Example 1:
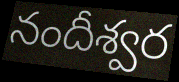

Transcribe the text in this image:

నందీశ్వర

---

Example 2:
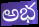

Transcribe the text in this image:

అభ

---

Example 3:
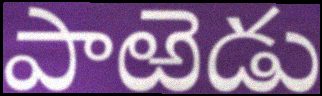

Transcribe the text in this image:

పాఱెడు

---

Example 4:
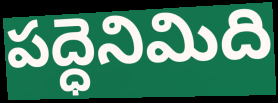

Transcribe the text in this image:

పద్ధెనిమిది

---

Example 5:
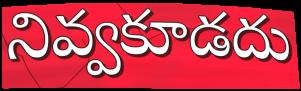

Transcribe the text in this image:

నివ్వకూడదు